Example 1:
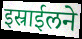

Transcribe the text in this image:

इस्राईलने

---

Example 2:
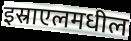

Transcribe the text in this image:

इस्राएलमधील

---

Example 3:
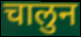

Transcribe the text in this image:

चालुन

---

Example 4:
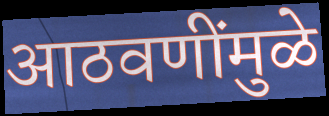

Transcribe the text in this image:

आठवणींमुळे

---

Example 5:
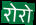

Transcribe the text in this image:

रोरो